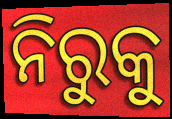
ନିରୁକୁ